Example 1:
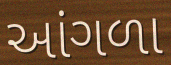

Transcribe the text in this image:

આંગળા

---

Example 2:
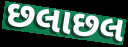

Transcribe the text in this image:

છલાછલ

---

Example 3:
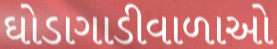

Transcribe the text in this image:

ઘોડાગાડીવાળાઓ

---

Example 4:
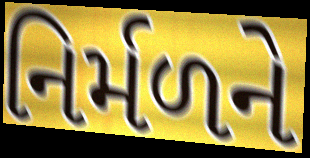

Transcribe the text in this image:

નિર્મળને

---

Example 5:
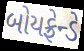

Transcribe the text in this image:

બોયફ્રેન્ડે